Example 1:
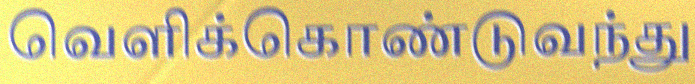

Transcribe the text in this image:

வெளிக்கொண்டுவந்து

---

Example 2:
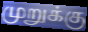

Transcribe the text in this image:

முறுக்கு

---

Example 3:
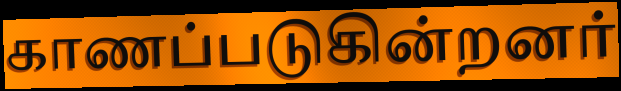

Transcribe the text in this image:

காணப்படுகின்றனர்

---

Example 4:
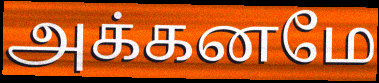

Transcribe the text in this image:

அக்கனமே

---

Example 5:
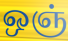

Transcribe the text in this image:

ஒஞ்